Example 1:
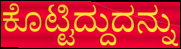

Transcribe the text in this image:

ಕೊಟ್ಟಿದ್ದುದನ್ನು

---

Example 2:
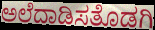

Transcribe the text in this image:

ಅಲೆದಾಡಿಸತೊಡಗಿ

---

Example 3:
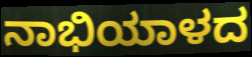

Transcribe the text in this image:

ನಾಭಿಯಾಳದ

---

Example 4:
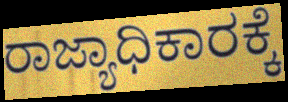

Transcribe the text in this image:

ರಾಜ್ಯಾಧಿಕಾರಕ್ಕೆ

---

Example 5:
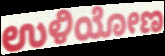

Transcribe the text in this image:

ಉಳಿಯೋಣ